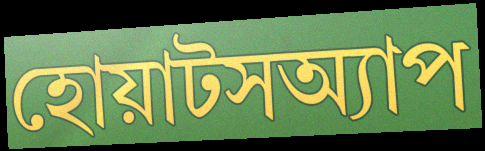
হোয়াটসঅ্যাপ